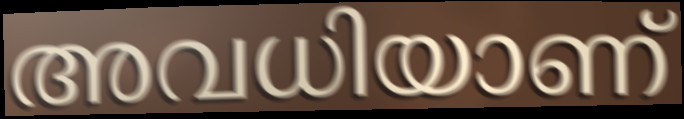
അവധിയാണ്